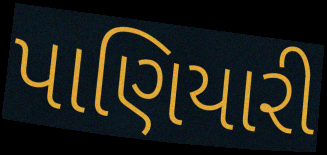
પાણિયારી